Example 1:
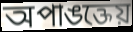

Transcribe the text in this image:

অপাঙক্তেয়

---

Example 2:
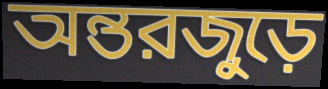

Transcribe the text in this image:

অন্তরজুড়ে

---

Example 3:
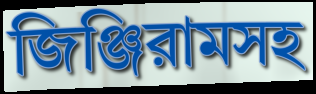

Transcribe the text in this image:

জিঞ্জিরামসহ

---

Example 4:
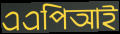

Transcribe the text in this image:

এএপিআই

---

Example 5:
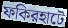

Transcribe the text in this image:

ফকিরহাটে